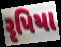
રૃપિયા